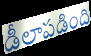
డీలాపడింది